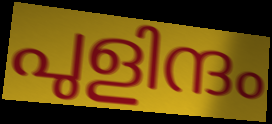
പുളിന്ദം